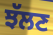
ਝੱਲਣ